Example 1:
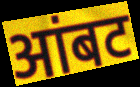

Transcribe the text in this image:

आंबट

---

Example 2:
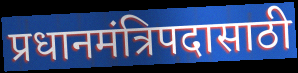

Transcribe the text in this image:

प्रधानमंत्रिपदासाठी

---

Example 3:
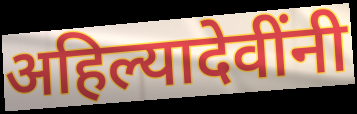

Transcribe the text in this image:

अहिल्यादेवींनी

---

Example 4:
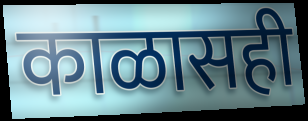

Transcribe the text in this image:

काळासही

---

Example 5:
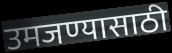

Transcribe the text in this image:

उमजण्यासाठी